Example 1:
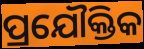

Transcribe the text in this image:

ପ୍ରଯୌକ୍ତିକ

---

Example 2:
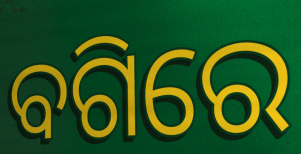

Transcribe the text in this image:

ବଗିରେ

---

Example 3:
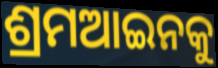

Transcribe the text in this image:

ଶ୍ରମଆଇନକୁ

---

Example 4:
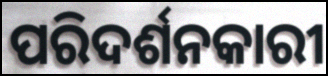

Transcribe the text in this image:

ପରିଦର୍ଶନକାରୀ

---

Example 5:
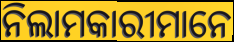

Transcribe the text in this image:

ନିଲାମକାରୀମାନେ